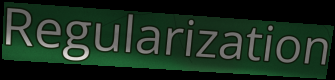
Regularization